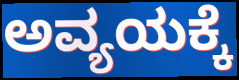
ಅವ್ಯಯಕ್ಕೆ